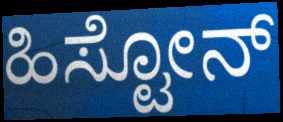
ಹಿಸ್ಟೋನ್